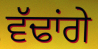
ਵੱਢਾਂਗੇ